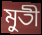
মুতী